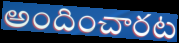
అందించారట